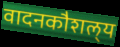
वादनकौशल्य